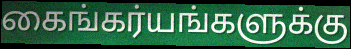
கைங்கர்யங்களுக்கு